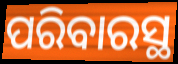
ପରିବାରସ୍ଥ